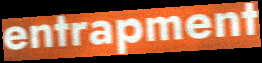
entrapment